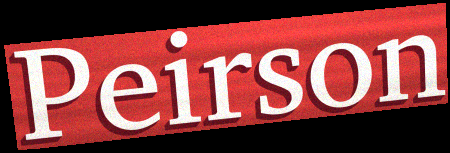
Peirson